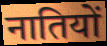
नातियों